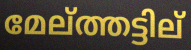
മേല്ത്തട്ടില്